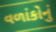
વળાંકોનું